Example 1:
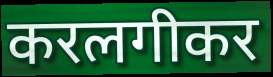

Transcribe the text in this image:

करलगीकर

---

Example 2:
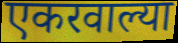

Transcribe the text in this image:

एकरवाल्या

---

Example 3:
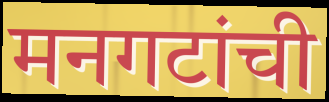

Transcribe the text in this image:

मनगटांची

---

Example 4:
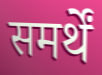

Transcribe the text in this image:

समर्थें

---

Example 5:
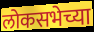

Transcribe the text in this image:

लोकसभेच्या